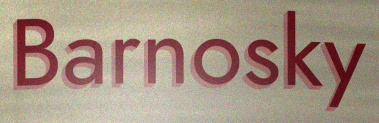
Barnosky